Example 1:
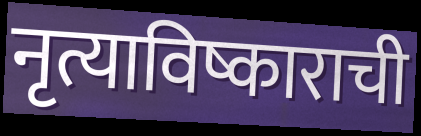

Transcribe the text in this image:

नृत्याविष्काराची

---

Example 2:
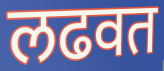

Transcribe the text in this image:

लढवत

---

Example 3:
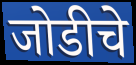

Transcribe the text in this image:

जोडीचे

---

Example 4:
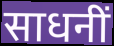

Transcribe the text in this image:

साधनीं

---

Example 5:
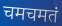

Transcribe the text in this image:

चमचमतं